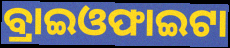
ବ୍ରାଇଓଫାଇଟା